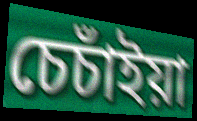
চেচাঁইয়া